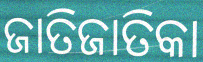
ଜାତିଜାତିକା